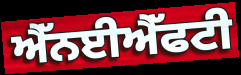
ਐੱਨਈਐੱਫਟੀ